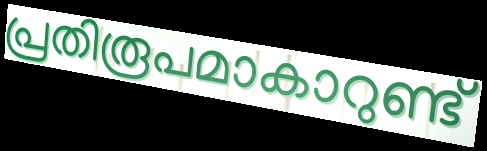
പ്രതിരൂപമാകാറുണ്ട്